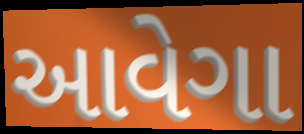
આવેગા